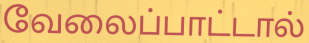
வேலைப்பாட்டால்